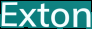
Exton